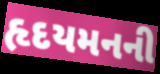
હૃદયમનની